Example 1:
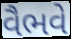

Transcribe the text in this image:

વૈભવે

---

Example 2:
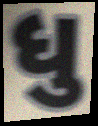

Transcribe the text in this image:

ધુ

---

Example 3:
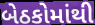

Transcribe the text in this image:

બેઠકોમાંથી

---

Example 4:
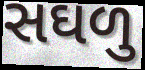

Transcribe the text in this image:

સઘળુ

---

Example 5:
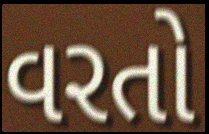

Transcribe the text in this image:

વરતો